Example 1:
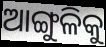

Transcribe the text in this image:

ଆଙ୍ଗୁଳିକୁ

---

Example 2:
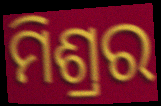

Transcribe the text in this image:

ମିଶ୍ରର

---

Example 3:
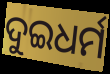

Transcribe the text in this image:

ଦୁଇଧର୍ମ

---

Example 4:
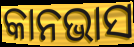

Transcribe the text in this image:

କାନଭାସ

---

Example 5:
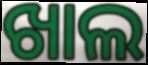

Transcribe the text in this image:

ଖାଲ